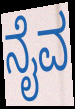
ನೈವ